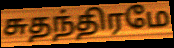
சுதந்திரமே